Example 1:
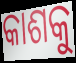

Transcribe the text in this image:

କାଶକୁ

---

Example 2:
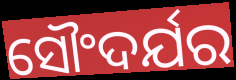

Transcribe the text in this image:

ସୌଂଦର୍ଯର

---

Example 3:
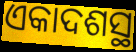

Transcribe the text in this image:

ଏକାଦଶସ୍ଥ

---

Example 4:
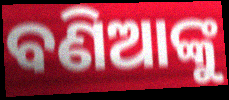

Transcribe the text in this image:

ବଣିଆଙ୍କୁ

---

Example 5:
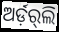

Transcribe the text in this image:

ଅର୍ଡ଼ର୍‌ଲି